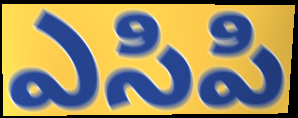
ఎసిపి